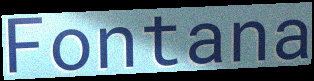
Fontana